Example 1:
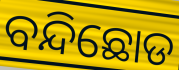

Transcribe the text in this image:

ବନ୍ଦିଛୋଡ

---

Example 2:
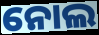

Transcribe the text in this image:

ନୋଲ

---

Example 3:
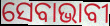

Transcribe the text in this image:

ସେବାଭାବୀ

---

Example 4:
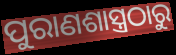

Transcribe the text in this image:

ପୁରାଣଶାସ୍ତ୍ରଠାରୁ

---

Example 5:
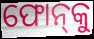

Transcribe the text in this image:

ଫୋନ୍‌କୁ